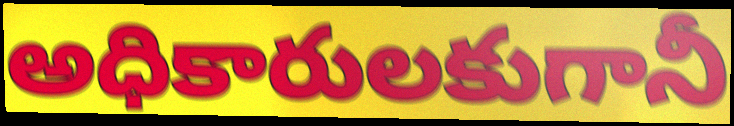
అధికారులకుగానీ